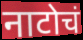
नाटोचं